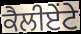
ਕੈਲੀਏਂਟੇ